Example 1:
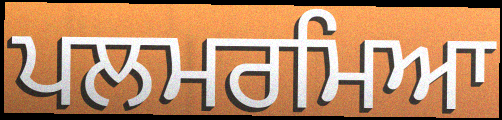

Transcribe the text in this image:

ਪਲਮਰਮਿਆ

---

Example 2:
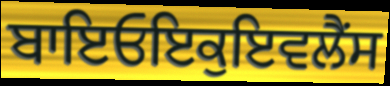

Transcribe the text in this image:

ਬਾਇਓਇਕੁਇਵਲੈਂਸ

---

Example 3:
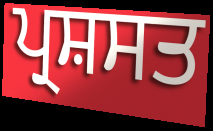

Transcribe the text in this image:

ਪ੍ਰਸ਼ਸਤ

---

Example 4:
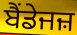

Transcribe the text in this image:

ਬੈਂਡੇਜਜ਼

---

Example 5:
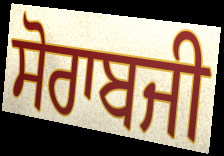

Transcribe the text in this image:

ਸੋਰਾਬਜੀ